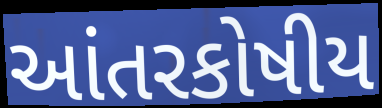
આંતરકોષીય